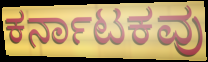
ಕರ್ನಾಟಕವು